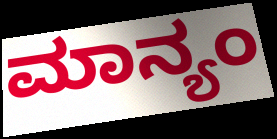
ಮಾನ್ಯಂ